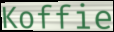
Koffie